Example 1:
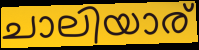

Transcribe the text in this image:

ചാലിയാര്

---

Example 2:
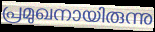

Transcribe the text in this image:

പ്രമുഖനായിരുന്നു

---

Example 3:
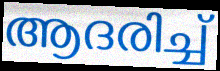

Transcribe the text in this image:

ആദരിച്ച്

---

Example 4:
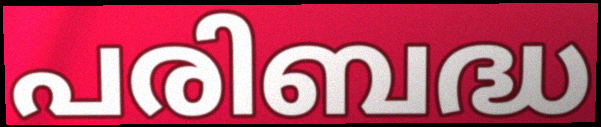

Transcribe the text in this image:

പരിബദ്ധ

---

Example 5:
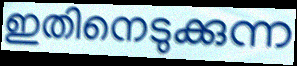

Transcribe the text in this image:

ഇതിനെടുക്കുന്ന